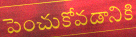
పెంచుకోవడానికి